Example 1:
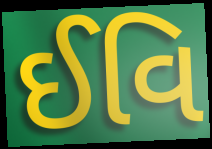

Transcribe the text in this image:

ઈવિ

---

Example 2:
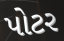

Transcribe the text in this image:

પોટર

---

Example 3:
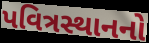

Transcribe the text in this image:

પવિત્રસ્થાનનો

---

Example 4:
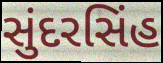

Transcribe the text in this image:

સુંદરસિંહ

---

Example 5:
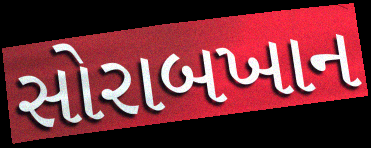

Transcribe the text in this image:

સોરાબખાન